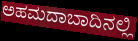
ಅಹಮದಾಬಾದಿನಲ್ಲಿ